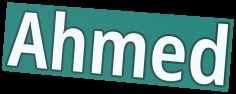
Ahmed